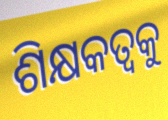
ଶିକ୍ଷକତ୍ଵକୁ